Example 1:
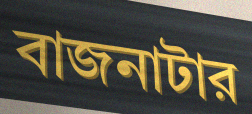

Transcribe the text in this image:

বাজনাটার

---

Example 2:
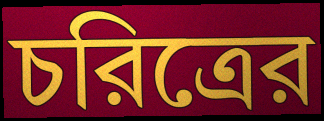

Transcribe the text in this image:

চরিত্রের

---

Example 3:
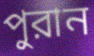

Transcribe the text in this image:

পুরান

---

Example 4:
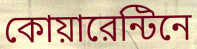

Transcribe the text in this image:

কোয়ারেন্টিনে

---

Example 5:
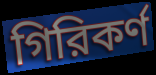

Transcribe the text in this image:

গিরিকর্ণ